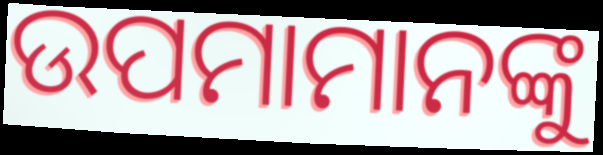
ଉପମାମାନଙ୍କୁ